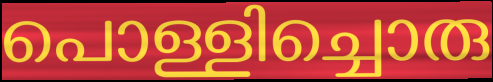
പൊള്ളിച്ചൊരു